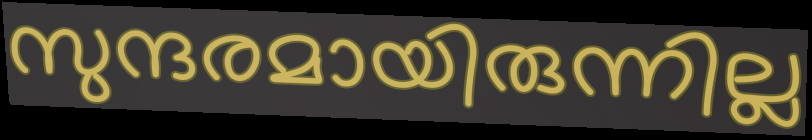
സുന്ദരമായിരുന്നില്ല